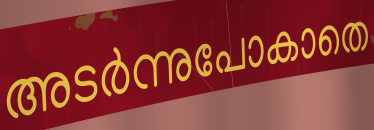
അടർന്നുപോകാതെ